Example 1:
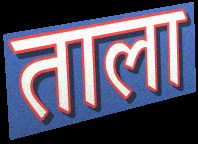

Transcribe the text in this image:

ताला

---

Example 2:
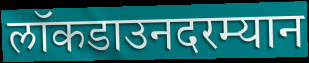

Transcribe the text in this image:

लॉकडाउनदरम्यान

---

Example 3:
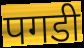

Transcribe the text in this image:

पगडी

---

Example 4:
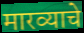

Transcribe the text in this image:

मारव्याचे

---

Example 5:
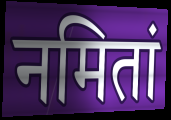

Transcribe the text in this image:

नमितां